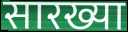
सारख्या